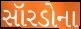
સૉરડોના